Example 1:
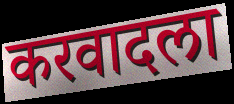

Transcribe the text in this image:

करवादला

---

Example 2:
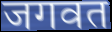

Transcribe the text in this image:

जगवत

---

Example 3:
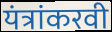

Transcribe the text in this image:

यंत्रांकरवी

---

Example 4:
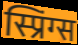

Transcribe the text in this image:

स्प्रिंग्स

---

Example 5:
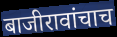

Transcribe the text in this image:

बाजीरावांचाच